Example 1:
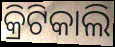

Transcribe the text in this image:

କ୍ରିଟିକାଲି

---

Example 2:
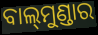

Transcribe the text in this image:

ବାଲ୍‍ମୁଣ୍ଡାର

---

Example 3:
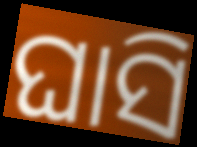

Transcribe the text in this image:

ଘାସି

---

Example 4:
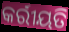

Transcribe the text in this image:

କର୍ରୀୟତି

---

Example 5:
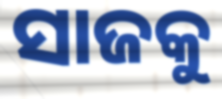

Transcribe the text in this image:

ସାଜକୁ